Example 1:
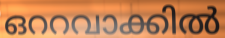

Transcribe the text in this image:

ഒററവാക്കിൽ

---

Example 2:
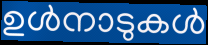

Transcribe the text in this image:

ഉൾനാടുകൾ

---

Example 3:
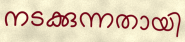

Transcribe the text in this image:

നടക്കുന്നതായി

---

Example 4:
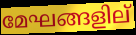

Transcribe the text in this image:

മേഘങ്ങളില്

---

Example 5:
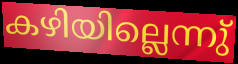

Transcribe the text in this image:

കഴിയില്ലെന്നു്